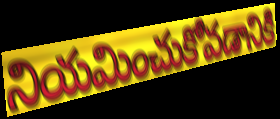
నియమించుకోవడానికి